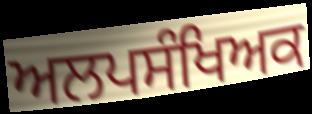
ਅਲਪਸੰਖਿਅਕ